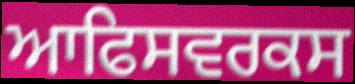
ਆਫਿਸਵਰਕਸ